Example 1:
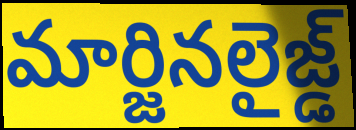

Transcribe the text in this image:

మార్జినలైజ్డ్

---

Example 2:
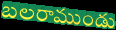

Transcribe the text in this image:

బలరాముండు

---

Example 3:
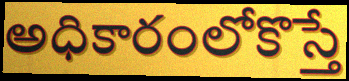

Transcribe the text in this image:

అధికారంలోకొస్తే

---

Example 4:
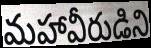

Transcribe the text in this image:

మహావీరుడిని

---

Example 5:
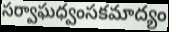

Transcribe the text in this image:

సర్వాఘధ్వంసకమాద్యం